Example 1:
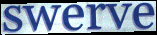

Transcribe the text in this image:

swerve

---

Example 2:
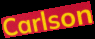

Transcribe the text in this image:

Carlson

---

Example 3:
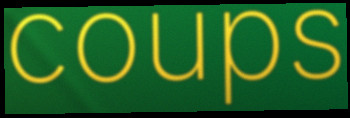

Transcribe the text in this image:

coups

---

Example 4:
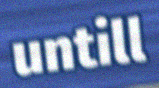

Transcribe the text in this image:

untill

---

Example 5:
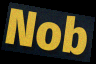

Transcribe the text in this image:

Nob